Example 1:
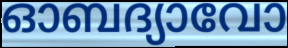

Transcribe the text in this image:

ഓബദ്യാവോ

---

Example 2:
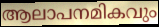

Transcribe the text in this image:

ആലാപനമികവും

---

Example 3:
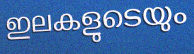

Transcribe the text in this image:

ഇലകളുടെയും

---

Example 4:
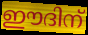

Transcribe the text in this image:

ഈദിന്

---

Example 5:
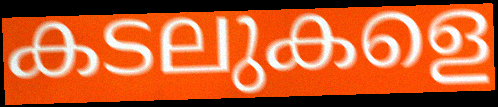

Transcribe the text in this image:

കടലുകളെ